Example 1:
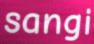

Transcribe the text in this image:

sangi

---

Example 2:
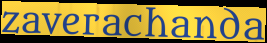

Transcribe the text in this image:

zaverachanda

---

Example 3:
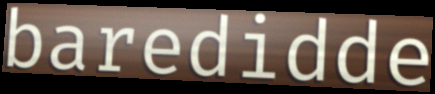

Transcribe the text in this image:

baredidde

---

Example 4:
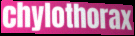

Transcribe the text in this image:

chylothorax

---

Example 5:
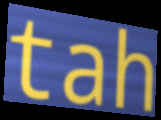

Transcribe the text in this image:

tah